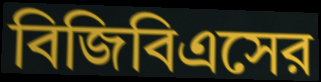
বিজিবিএসের